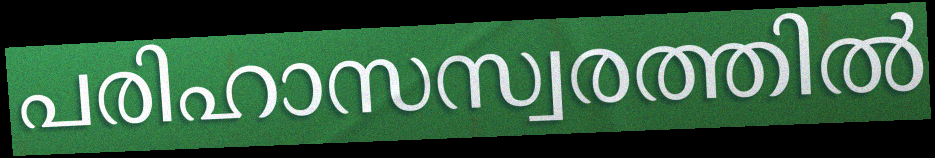
പരിഹാസസ്വരത്തിൽ